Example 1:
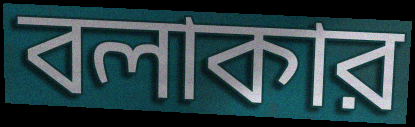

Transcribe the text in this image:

বলাকার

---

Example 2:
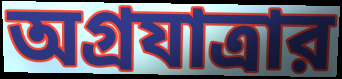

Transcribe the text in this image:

অগ্রযাত্রার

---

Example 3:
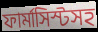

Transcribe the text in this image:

ফার্মাসিস্টসহ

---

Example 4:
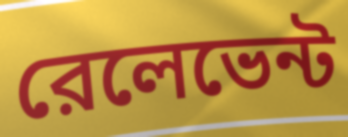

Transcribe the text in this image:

রেলেভেন্ট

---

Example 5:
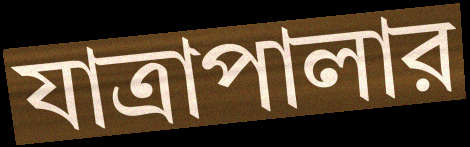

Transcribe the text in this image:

যাত্রাপালার